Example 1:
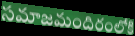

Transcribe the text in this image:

సమాజమందిరంలోకి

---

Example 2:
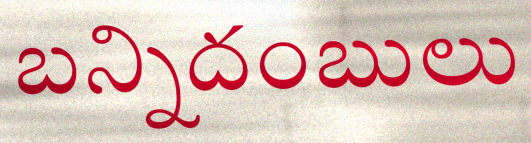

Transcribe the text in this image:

బన్నిదంబులు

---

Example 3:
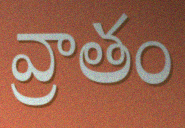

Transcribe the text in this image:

వ్రాతం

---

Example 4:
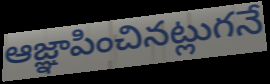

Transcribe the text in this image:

ఆజ్ఞాపించినట్లుగనే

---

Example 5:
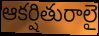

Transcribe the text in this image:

ఆకర్షితురాలై